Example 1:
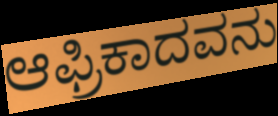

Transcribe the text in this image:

ಆಫ್ರಿಕಾದವನು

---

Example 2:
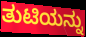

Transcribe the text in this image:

ತುಟಿಯನ್ನು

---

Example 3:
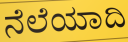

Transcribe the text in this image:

ನೆಲೆಯಾದಿ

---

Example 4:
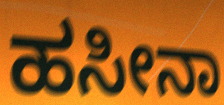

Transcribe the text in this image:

ಹಸೀನಾ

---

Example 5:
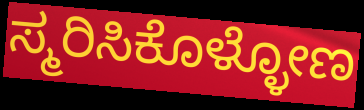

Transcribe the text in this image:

ಸ್ಮರಿಸಿಕೊಳ್ಳೋಣ